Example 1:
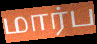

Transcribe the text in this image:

மார்ப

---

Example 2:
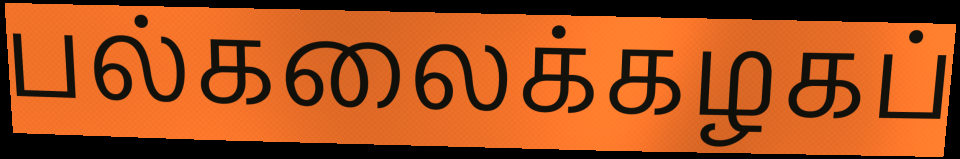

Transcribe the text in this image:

பல்கலைக்கழகப்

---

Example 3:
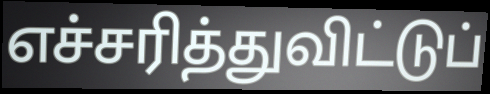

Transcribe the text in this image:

எச்சரித்துவிட்டுப்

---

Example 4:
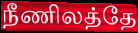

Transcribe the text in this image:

நீணிலத்தே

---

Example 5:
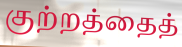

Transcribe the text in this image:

குற்றத்தைத்